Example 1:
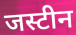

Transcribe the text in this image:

जस्टीन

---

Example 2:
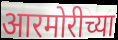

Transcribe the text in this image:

आरमोरीच्या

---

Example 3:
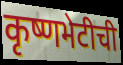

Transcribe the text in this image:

कृष्णभेटीची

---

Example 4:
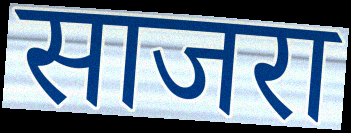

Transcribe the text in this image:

साजरा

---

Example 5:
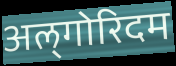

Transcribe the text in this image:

अल्गोरिदम